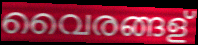
വൈരങ്ങള്